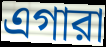
এগারা